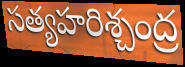
సత్యహరిశ్చంద్ర